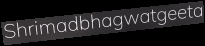
Shrimadbhagwatgeeta